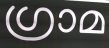
ഗ്രാമ